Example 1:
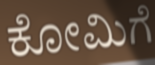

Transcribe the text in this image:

ಕೋಮಿಗೆ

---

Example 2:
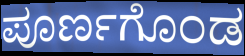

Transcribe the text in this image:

ಪೂರ್ಣಗೊಂಡ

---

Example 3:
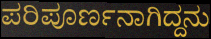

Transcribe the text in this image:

ಪರಿಪೂರ್ಣನಾಗಿದ್ದನು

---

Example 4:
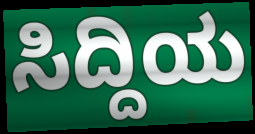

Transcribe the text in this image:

ಸಿದ್ದಿಯ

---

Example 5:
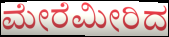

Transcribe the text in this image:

ಮೇರೆಮೀರಿದ